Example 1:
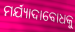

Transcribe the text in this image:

ମର୍ଯ୍ୟାଦାବୋଧକୁ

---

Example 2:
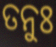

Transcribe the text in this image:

ତନୁଃ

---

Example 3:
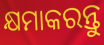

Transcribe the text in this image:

କ୍ଷମାକରନ୍ତୁ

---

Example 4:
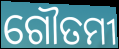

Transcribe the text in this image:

ଗୌତମୀ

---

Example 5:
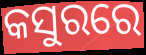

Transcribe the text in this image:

କସୁରରେ